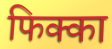
फिक्का